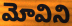
మోవిని